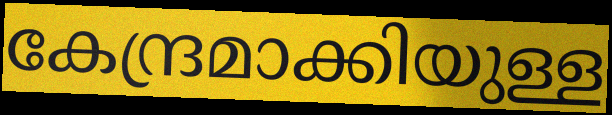
കേന്ദ്രമാക്കിയുള്ള